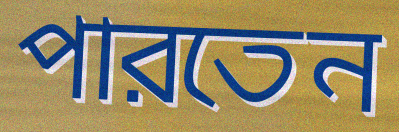
পারতেন